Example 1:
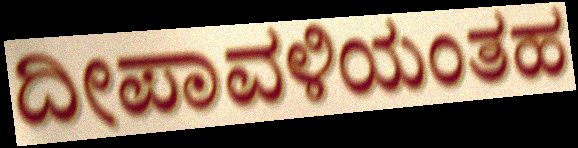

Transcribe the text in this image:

ದೀಪಾವಳಿಯಂತಹ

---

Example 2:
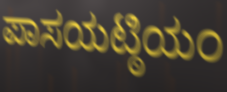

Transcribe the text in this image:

ಪಾಸಯಟ್ಠಿಯಂ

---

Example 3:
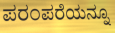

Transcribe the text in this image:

ಪರಂಪರೆಯನ್ನೂ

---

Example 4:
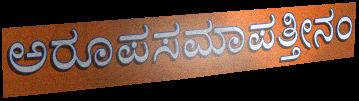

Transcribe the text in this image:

ಅರೂಪಸಮಾಪತ್ತೀನಂ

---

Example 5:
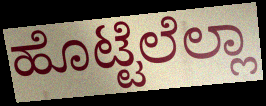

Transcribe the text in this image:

ಹೊಟ್ಟೆಲೆಲ್ಲಾ